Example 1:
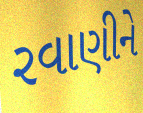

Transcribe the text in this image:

રવાણીને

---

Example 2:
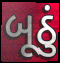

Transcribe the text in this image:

બૂઠું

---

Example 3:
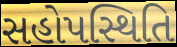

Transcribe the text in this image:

સહોપસ્થિતિ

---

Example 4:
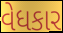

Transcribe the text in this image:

વેધકાર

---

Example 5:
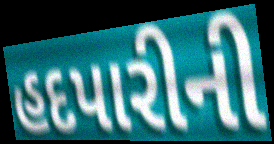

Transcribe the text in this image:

હદપારીની